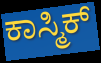
ಕಾಸ್ಮಿಕ್